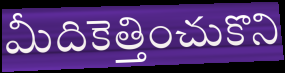
మీదికెత్తించుకొని